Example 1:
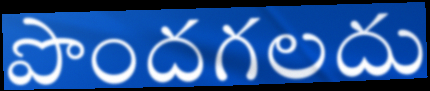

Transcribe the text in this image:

పొందగలదు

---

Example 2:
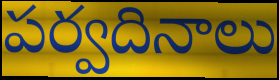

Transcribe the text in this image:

పర్వదినాలు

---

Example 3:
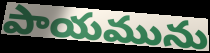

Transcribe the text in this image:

పాయమును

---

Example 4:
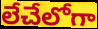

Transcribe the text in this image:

లేచేలోగా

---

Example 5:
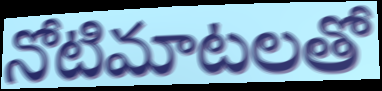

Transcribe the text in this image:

నోటిమాటలతో